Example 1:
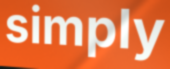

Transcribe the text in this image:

simply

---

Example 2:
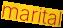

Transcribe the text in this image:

marital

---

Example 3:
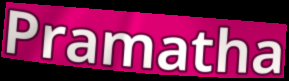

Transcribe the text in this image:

Pramatha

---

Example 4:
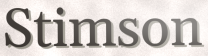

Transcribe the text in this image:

Stimson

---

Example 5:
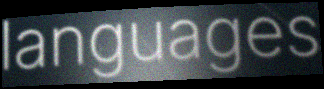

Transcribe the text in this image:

languages